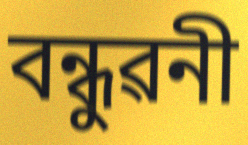
বন্ধুৱনী